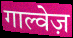
गाल्वेज़